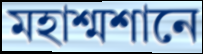
মহাশ্মশানে